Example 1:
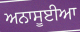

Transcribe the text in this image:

ਅਨਾਸੂਈਆ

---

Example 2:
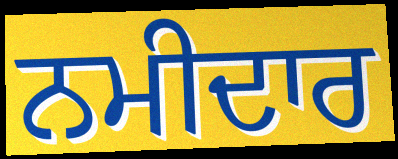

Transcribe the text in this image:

ਨਮੀਦਾਰ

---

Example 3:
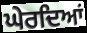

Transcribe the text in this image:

ਘੇਰਦਿਆਂ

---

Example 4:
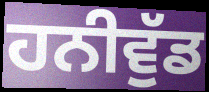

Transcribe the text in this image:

ਹਨੀਵੁੱਡ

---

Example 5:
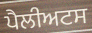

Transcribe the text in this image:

ਪੈਲੀਅਟਸ